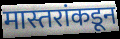
मास्तरांकडून